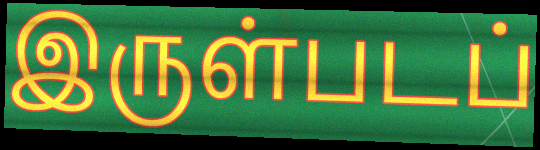
இருள்படப்